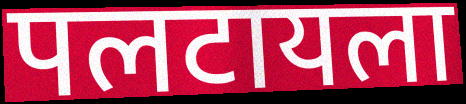
पलटायला